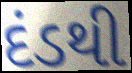
દંડથી